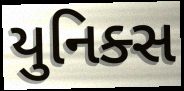
યુનિક્સ